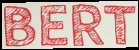
BERT